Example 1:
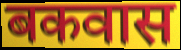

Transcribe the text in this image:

बकवास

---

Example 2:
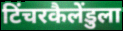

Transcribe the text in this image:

टिंचरकैलेंडुला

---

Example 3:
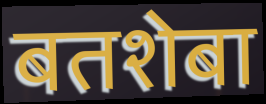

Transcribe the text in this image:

बतशेबा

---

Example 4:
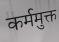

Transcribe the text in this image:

कर्ममुक्त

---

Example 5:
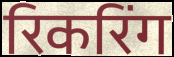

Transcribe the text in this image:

रिकरिंग